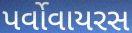
પર્વોવાયરસ